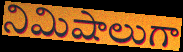
నిమిషాలుగా